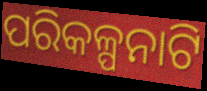
ପରିକଳ୍ପନାଟି